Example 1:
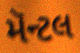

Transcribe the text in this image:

મૅન્ટલ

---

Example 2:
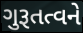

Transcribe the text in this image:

ગુરૂતત્વને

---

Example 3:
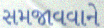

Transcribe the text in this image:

સમજાવવાને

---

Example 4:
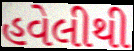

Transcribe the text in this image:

હવેલીથી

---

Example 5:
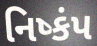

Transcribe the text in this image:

નિષ્કંપ